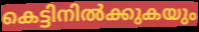
കെട്ടിനിൽക്കുകയും